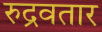
रुद्रवतार